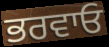
ਭਰਵਾਓ